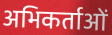
अभिकर्ताओं